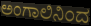
ಅಂಗಾಲಿನಿಂದ